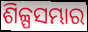
ଶିଳ୍ପସମ୍ଭାର